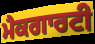
ਮੈਕਗਾਰਟੀ